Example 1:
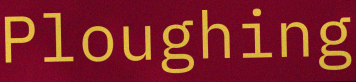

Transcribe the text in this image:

Ploughing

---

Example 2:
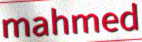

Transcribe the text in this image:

mahmed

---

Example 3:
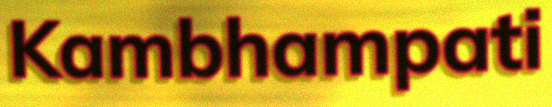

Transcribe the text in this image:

Kambhampati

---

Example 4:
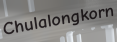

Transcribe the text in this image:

Chulalongkorn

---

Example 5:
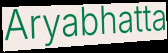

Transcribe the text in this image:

Aryabhatta